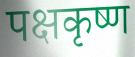
पक्षकृष्ण